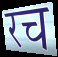
रच